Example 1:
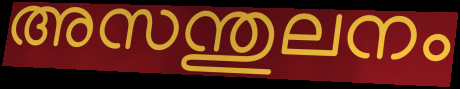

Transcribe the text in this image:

അസന്തുലനം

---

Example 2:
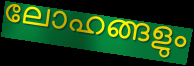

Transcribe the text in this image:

ലോഹങ്ങളും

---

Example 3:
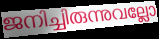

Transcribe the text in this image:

ജനിച്ചിരുന്നുവല്ലോ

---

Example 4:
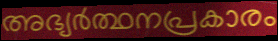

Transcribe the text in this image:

അഭ്യർത്ഥനപ്രകാരം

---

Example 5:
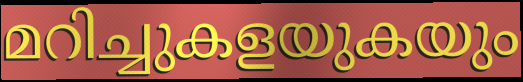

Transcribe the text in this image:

മറിച്ചുകളയുകയും